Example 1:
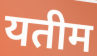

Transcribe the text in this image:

यतीम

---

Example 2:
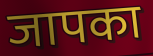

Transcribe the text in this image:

जापका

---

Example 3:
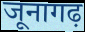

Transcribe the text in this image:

जूनागढ़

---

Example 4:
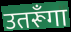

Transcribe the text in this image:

उतरूँगा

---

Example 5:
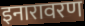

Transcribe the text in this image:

इनारावरण